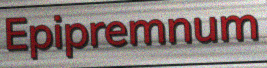
Epipremnum